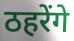
ठहरेंगे